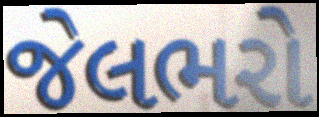
જેલભરો